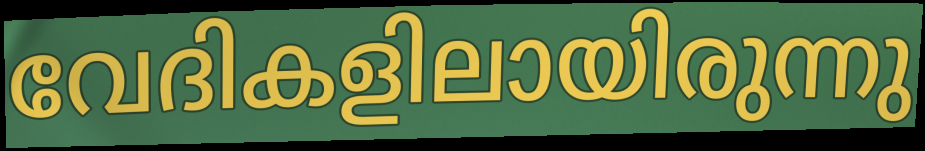
വേദികളിലായിരുന്നു